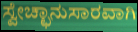
ಸ್ವೇಚ್ಛಾನುಸಾರವಾಗಿ